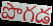
పొగడ